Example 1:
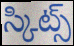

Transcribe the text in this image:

స్కిట్స్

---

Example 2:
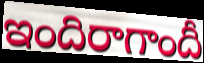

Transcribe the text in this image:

ఇందిరాగాందీ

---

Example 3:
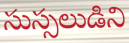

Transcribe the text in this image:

సుస్సలుడిని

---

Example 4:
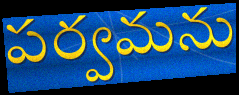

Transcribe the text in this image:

పర్వమను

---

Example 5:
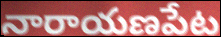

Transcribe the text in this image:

నారాయణపేట